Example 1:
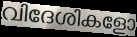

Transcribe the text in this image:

വിദേശികളോ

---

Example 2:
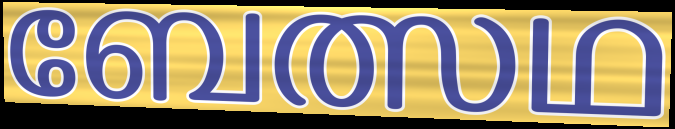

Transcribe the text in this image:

ബേത്സഥ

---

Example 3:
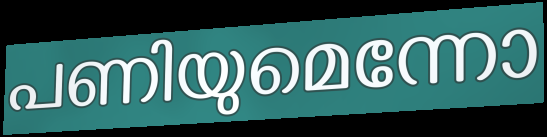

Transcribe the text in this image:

പണിയുമെന്നോ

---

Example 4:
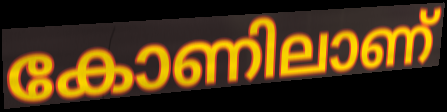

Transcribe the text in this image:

കോണിലാണ്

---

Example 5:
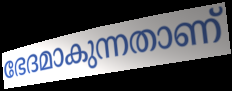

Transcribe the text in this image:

ഭേദമാകുന്നതാണ്